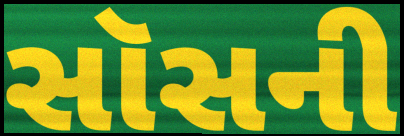
સૉસની